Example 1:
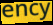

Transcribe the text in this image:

ency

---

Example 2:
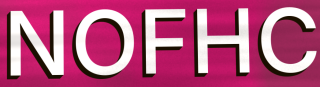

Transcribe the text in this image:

NOFHC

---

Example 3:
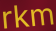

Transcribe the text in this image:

rkm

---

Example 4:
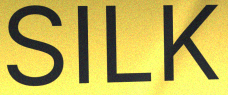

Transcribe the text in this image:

SILK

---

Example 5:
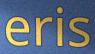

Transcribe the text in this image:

eris